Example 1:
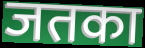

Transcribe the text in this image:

जतका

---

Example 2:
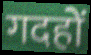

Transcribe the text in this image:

गदहों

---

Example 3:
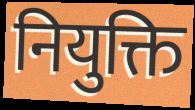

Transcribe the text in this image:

नियुक्ति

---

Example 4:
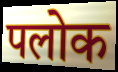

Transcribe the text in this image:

पलोक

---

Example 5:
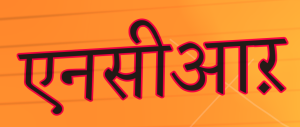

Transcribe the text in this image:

एनसीआऱ